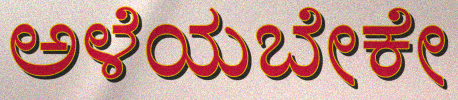
ಅಳೆಯಬೇಕೇ